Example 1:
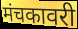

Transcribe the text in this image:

मंचकावरी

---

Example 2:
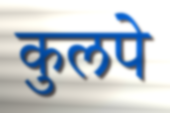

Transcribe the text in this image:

कुलपे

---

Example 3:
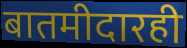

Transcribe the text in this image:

बातमीदारही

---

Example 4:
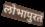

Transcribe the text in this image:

लोभापुरतं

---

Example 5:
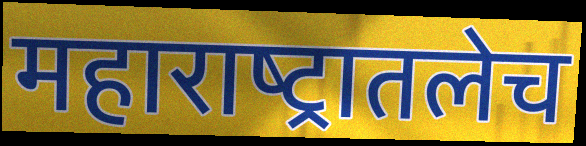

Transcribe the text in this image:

महाराष्ट्रातलेच